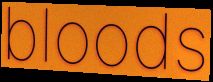
bloods